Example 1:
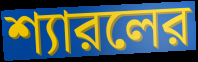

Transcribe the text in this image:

শ্যারলের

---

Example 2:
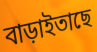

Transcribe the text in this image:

বাড়াইতাছে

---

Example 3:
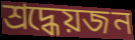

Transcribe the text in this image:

শ্রদ্ধেয়জন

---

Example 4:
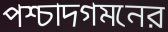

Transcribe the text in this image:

পশ্চাদগমনের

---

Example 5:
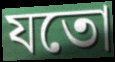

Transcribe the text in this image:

যতো